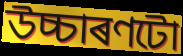
উচ্চাৰণটো